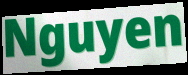
Nguyen